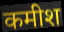
कमीश